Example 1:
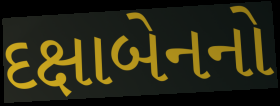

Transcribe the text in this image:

દક્ષાબેનનો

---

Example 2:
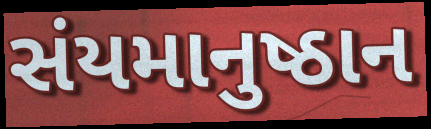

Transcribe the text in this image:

સંયમાનુષ્ઠાન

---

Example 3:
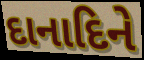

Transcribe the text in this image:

દાનાદિને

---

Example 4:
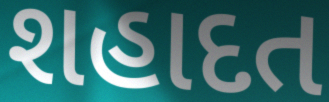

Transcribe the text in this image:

શહાદત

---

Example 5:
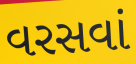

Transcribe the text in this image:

વરસવાં